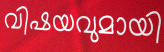
വിഷയവുമായി